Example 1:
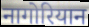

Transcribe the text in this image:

नागोरियान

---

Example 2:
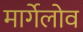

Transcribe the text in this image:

मार्गेलोव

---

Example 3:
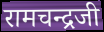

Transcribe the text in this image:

रामचन्द्रजी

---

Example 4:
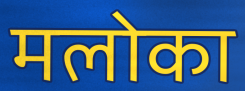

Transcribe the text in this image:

मलोका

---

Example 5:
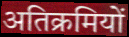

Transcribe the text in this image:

अतिक्रमियों